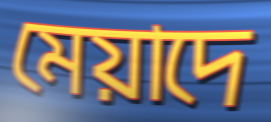
মেয়াদে